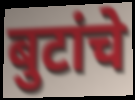
बुटांचे